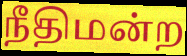
நீதிமன்ற